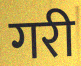
गरी